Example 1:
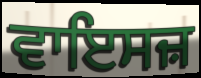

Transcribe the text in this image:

ਵਾਇਸਜ਼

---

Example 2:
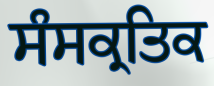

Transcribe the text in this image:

ਸੰਸਕ੍ਰਤਿਕ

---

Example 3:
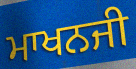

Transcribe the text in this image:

ਮਾਖਨਜੀ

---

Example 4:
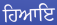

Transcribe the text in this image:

ਹਿਆਇ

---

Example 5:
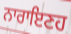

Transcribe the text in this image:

ਨਾਰਾਇਣਹ